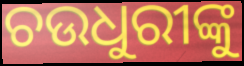
ଚଉଧୁରୀଙ୍କୁ